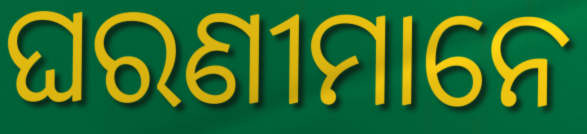
ଘରଣୀମାନେ